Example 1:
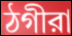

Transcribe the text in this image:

ঠগীরা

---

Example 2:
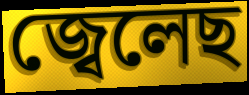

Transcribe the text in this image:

জ্বেলেছ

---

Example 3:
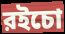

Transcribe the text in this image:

রইচো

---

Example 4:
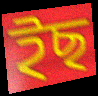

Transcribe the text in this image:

ইছ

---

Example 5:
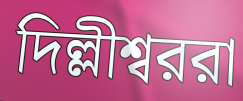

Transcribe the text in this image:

দিল্লীশ্বররা